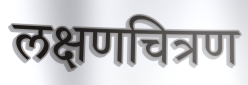
लक्षणचित्रण